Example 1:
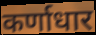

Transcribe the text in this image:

कर्णाधार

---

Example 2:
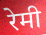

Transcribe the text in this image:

रेमी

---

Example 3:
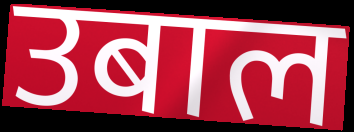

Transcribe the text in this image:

उबाल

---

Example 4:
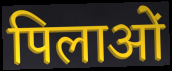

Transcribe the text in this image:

पिलाओं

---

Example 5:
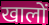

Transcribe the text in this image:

खालों